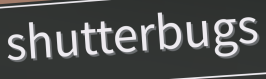
shutterbugs